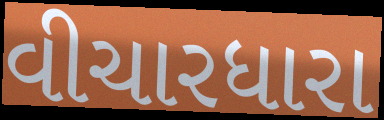
વીચારધારા